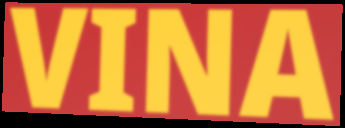
VINA